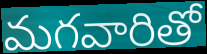
మగవారితో